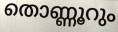
തൊണ്ണൂറും